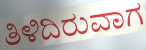
ತಿಳಿದಿರುವಾಗ